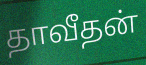
தாவீதன்